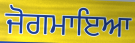
ਜੋਗਮਾਇਆ